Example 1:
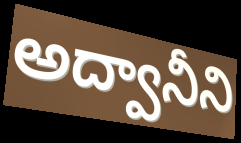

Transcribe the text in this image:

అద్వానీని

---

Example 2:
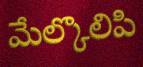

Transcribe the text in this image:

మేల్కొలిపి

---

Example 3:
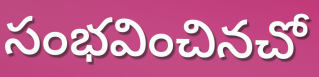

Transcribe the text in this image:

సంభవించినచో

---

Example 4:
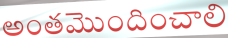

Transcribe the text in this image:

అంతమొందించాలి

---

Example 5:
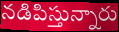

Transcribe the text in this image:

నడిపిస్తున్నారు